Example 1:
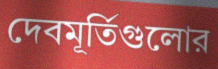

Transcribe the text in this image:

দেবমূর্তিগুলোর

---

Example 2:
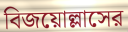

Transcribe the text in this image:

বিজয়োল্লাসের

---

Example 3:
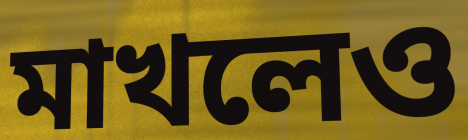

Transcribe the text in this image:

মাখলেও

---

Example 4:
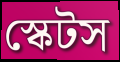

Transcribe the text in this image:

স্কেটস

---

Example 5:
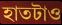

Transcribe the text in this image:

হাতটাও